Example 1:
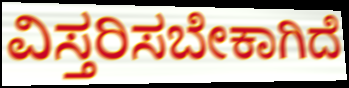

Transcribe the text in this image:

ವಿಸ್ತರಿಸಬೇಕಾಗಿದೆ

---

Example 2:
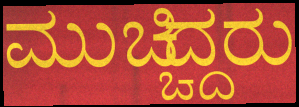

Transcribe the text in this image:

ಮುಚ್ಚಿದ್ದರು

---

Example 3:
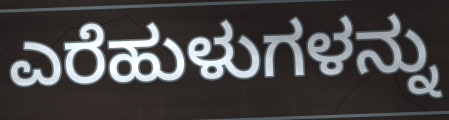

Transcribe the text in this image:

ಎರೆಹುಳುಗಳನ್ನು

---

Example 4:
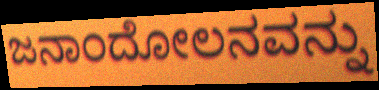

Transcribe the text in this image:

ಜನಾಂದೋಲನವನ್ನು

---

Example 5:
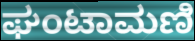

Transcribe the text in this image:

ಘಂಟಾಮಣಿ